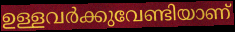
ഉള്ളവർക്കുവേണ്ടിയാണ്